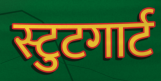
स्टुटगार्ट